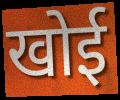
खोई